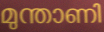
മുന്താണി